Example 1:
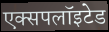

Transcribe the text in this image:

एक्सपलॉइटेड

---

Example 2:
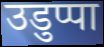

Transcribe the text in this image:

उडुप्पा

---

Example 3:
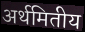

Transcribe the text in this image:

अर्थमितीय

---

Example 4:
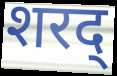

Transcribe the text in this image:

शरद्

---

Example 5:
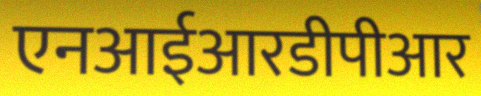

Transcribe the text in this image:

एनआईआरडीपीआर